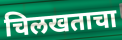
चिलखताचा